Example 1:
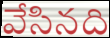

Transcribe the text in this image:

వేసినది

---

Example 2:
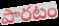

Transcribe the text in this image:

పారటం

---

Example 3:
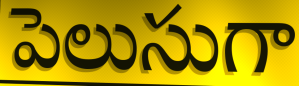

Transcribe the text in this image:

పెలుసుగా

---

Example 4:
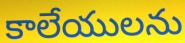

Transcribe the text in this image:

కాలేయులను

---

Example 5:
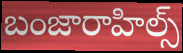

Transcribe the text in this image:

బంజారాహిల్స్